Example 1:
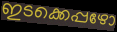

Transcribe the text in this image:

ഇടക്കെപ്പഴോ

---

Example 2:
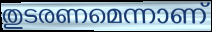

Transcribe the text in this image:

തുടരണമെന്നാണ്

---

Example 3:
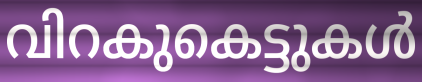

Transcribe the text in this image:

വിറകുകെട്ടുകൾ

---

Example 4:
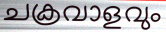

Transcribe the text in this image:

ചക്രവാളവും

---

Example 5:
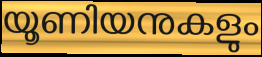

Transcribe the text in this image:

യൂണിയനുകളും